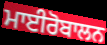
ਮਾਈਰੋਬਾਲਨ